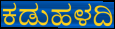
ಕಡುಹಳದಿ